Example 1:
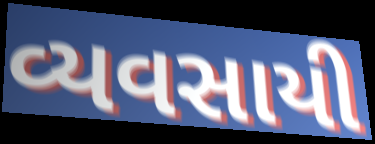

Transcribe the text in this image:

વ્યવસાયી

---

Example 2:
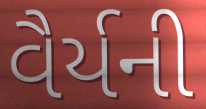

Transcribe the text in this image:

વૈર્યની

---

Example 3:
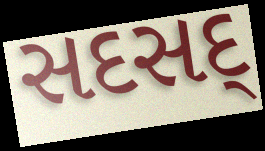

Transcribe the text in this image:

સદસદ્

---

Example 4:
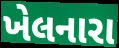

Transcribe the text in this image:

ખેલનારા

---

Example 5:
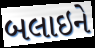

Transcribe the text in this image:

બલાઇને